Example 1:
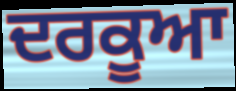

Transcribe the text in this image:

ਦਰਕੂਆ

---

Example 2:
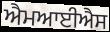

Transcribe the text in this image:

ਐਮਆਈਐਸ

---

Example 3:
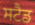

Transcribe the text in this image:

ਸਟੈਡ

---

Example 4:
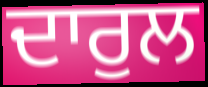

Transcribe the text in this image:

ਦਾਰੁਲ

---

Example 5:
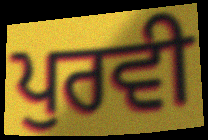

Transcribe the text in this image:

ਪੁਰਵੀ